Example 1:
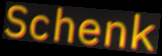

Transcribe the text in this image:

Schenk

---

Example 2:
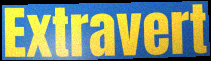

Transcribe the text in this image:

Extravert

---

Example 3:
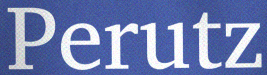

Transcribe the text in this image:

Perutz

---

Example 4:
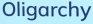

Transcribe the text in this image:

Oligarchy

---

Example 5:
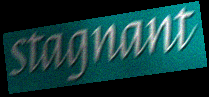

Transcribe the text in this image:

stagnant